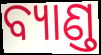
ବ୍ୟାଣ୍ଡ